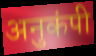
अनुकंपी